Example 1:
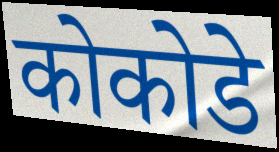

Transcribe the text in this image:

कोकोडे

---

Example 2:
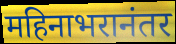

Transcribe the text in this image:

महिनाभरानंतर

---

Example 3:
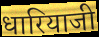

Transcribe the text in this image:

धारियाजी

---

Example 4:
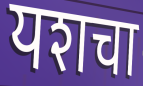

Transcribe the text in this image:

यशचा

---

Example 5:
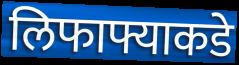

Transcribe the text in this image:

लिफाफ्याकडे